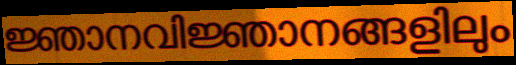
ജ്ഞാനവിജ്ഞാനങ്ങളിലും